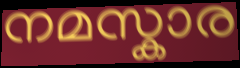
നമസ്കാര